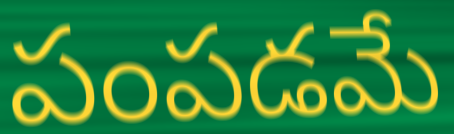
పంపడమే